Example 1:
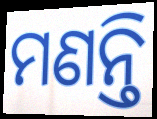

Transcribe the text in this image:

ମଣନ୍ତି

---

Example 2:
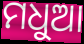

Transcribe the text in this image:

ମଧୁଆ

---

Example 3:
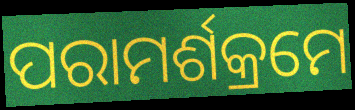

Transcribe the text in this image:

ପରାମର୍ଶକ୍ରମେ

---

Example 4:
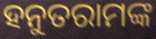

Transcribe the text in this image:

ହନୁତରାମଙ୍କ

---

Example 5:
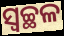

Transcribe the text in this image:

ସ୍ୱଚ୍ଛଳ